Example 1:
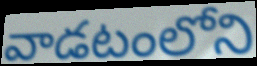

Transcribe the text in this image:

వాడటంలోని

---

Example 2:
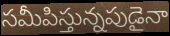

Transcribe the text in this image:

సమీపిస్తున్నపుడైనా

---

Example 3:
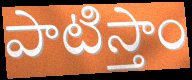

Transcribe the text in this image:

పాటిస్తాం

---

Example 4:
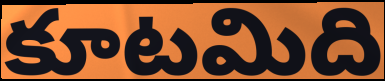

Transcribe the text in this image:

కూటమిది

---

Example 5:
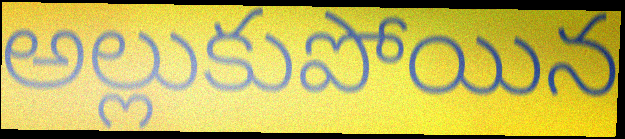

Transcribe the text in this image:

అల్లుకుపోయిన